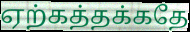
ஏற்கத்தக்கதே